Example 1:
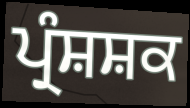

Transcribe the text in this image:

ਪ੍ਰੰਸ਼ਸ਼ਕ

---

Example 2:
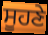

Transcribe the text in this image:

ਸੂਹਣੇ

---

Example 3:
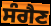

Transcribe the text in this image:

ਸੰਗੈਣ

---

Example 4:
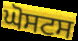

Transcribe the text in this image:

ਘੋਸਟਸ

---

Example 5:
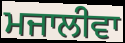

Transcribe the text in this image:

ਮਜਾਲੀਵਾ